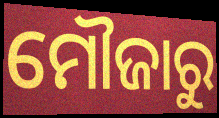
ମୌଜାରୁ